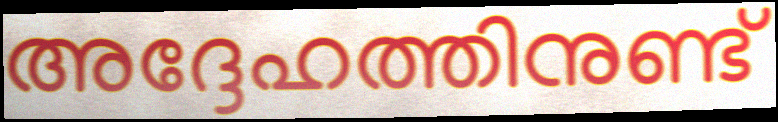
അദ്ദേഹത്തിനുണ്ട്